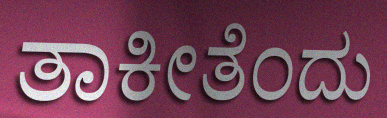
ತಾಕೀತೆಂದು